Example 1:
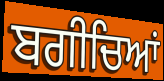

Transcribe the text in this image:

ਬਗੀਚਿਆਂ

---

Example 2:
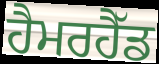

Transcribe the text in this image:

ਹੈਮਰਹੈੱਡ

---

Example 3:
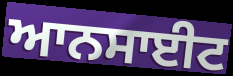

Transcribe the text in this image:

ਆਨਸਾਈਟ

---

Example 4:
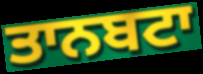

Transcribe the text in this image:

ਤਾਨਬਟਾ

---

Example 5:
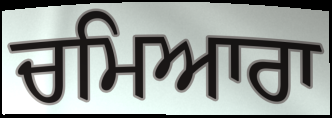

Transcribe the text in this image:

ਚਮਿਆਰਾ